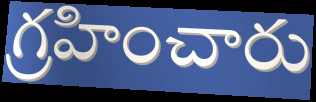
గ్రహించారు